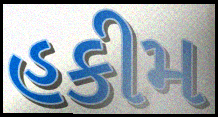
હકીમ